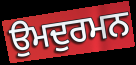
ਉਮਦੁਰਮਨ